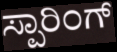
ಸ್ಪಾರಿಂಗ್